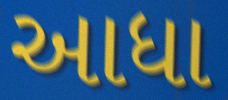
આધા